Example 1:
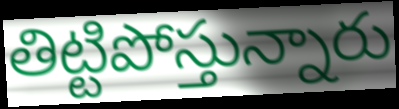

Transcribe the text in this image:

తిట్టిపోస్తున్నారు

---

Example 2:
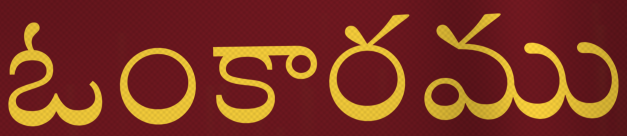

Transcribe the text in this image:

ఓంకారము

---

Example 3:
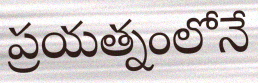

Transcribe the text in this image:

ప్రయత్నంలోనే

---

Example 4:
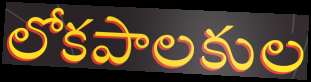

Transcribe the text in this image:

లోకపాలకుల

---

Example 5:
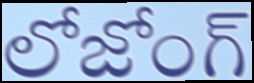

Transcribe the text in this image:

లోజోంగ్